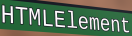
HTMLElement